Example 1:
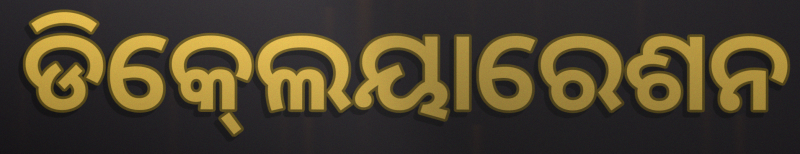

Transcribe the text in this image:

ଡିକ୍‍ଲେୟାରେଶନ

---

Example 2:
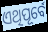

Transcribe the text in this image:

ଏଥିପୂର୍ବେ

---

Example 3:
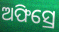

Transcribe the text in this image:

ଅଫିସ୍ରେ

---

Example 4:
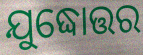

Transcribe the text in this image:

ଯୁଦ୍ଧୋତ୍ତର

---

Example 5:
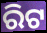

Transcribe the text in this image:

ରିଟ